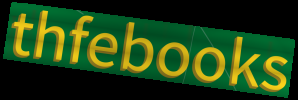
thfebooks